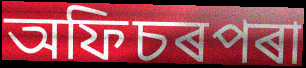
অফিচৰপৰা